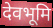
देवभूमि